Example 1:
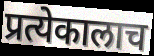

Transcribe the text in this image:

प्रत्येकालाच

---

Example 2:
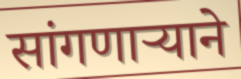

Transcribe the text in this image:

सांगणार्‍याने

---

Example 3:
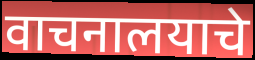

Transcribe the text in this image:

वाचनालयाचे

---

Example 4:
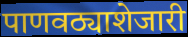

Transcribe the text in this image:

पाणवठ्याशेजारी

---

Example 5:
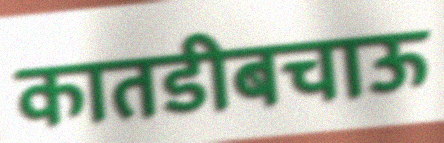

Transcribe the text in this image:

कातडीबचाऊ